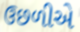
ઉછળીએ